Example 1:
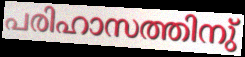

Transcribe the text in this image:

പരിഹാസത്തിനു്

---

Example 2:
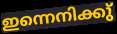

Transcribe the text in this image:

ഇന്നെനിക്കു്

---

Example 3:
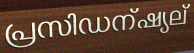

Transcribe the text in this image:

പ്രസിഡന്ഷ്യല്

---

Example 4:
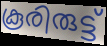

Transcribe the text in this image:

കൂരിരുട്ട്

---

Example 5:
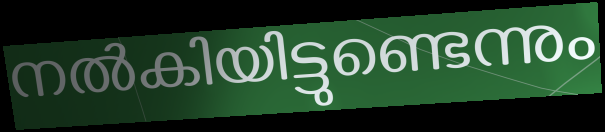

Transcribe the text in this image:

നൽകിയിട്ടുണ്ടെന്നും